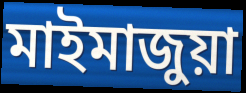
মাইমাজুয়া